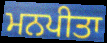
ਮਨਪੀਤਾ